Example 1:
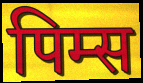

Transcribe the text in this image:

पिम्स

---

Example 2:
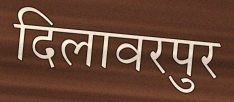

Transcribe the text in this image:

दिलावरपुर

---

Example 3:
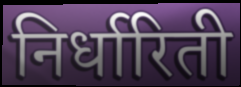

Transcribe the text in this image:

निर्धारिती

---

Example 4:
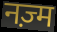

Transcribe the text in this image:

नज़्म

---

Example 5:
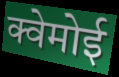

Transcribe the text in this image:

क्वेमोई